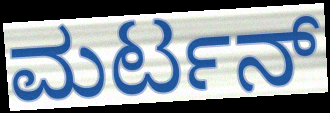
ಮರ್ಟನ್